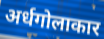
अर्धगोलाकार